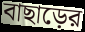
বাছাড়ের